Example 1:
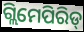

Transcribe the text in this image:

ଗ୍ଲିମେପିରିଡ୍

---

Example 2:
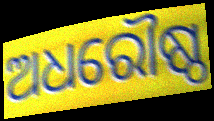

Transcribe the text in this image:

ଅଧରୌଷ୍ଠ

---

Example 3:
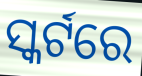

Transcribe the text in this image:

ସ୍କର୍ଟରେ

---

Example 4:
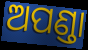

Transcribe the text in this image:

ଅପଣ୍ଡା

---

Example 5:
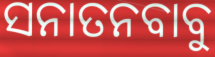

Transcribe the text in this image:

ସନାତନବାବୁ